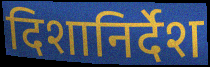
दिशानिर्देश